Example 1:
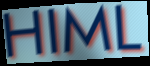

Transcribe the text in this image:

HIML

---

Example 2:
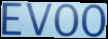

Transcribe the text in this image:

EVOO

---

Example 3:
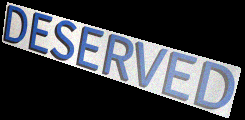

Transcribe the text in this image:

DESERVED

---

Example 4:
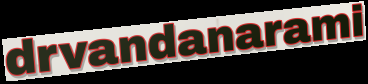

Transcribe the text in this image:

drvandanarami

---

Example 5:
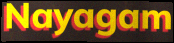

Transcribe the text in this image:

Nayagam